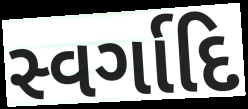
સ્વર્ગાદિ